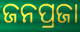
ଜନପ୍ରଜା